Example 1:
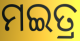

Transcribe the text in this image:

ମଇତ୍ର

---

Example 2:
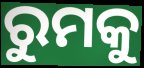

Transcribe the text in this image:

ରୁମକୁ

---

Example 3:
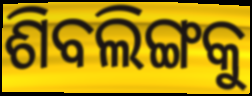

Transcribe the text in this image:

ଶିବଲିଙ୍ଗକୁ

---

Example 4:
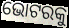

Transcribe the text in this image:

ଭୋଟରକୁ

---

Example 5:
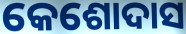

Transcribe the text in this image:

କେଶୋଦାସ